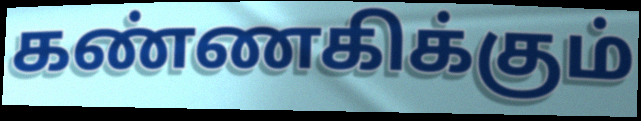
கண்ணகிக்கும்